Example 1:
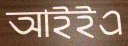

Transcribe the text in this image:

আইইএ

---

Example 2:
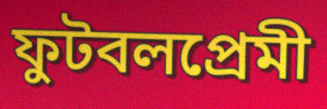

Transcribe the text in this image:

ফুটবলপ্রেমী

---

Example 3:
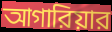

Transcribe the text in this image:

আগারিয়ার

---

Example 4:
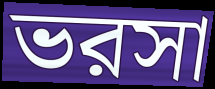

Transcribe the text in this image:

ভরসা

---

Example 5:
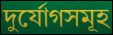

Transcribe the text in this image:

দুর্যোগসমূহ